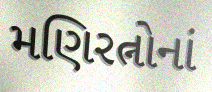
મણિરત્નોનાં